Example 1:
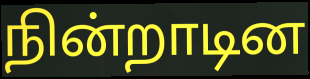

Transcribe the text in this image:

நின்றாடின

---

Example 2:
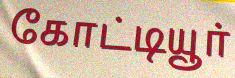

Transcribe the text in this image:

கோட்டியூர்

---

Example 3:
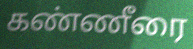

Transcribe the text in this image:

கண்ணீரை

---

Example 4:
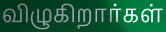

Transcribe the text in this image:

விழுகிறார்கள்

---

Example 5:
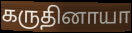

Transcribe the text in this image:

கருதினாயா